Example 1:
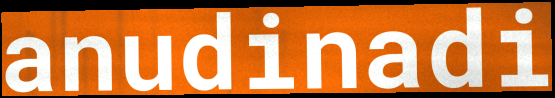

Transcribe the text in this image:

anudinadi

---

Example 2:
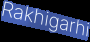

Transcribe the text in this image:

Rakhigarhi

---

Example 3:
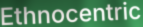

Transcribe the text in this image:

Ethnocentric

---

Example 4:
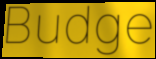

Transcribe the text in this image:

Budge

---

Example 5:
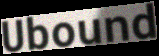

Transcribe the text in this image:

Ubound